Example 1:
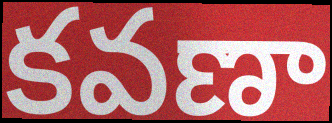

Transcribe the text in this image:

కవణా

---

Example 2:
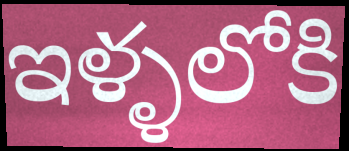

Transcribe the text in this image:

ఇళ్ళలోకి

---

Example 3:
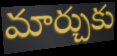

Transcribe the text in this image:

మార్చుకు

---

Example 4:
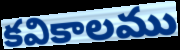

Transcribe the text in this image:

కవికాలము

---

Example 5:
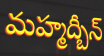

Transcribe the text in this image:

మహ్మద్బీన్